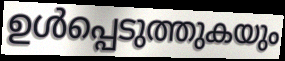
ഉൾപ്പെടുത്തുകയും